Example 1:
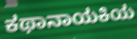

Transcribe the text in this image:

ಕಥಾನಾಯಕಿಯ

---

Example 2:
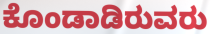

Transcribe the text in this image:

ಕೊಂಡಾಡಿರುವರು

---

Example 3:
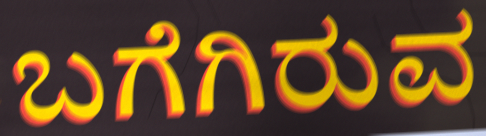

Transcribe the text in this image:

ಬಗೆಗಿರುವ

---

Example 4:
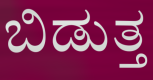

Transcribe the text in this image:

ಬಿಡುತ್ತ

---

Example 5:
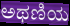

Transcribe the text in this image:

ಅಥಣಿಯ